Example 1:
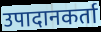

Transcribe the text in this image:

उपादानकर्ता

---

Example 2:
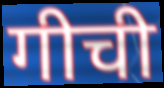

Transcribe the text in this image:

गीची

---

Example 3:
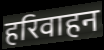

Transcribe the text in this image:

हरिवाहन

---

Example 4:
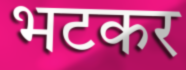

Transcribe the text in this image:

भटकर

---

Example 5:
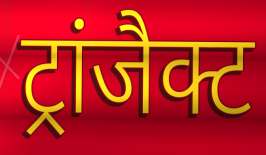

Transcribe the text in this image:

ट्रांजैक्ट